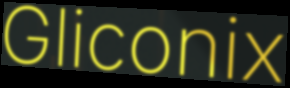
Gliconix